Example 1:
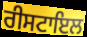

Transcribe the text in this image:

ਰੀਸਟਾਇਲ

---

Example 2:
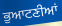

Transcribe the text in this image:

ਭੁਆਟਣੀਆਂ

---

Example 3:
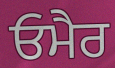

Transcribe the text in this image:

ਓਮੈਰ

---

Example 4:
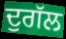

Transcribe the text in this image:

ਦੁਗੱਲ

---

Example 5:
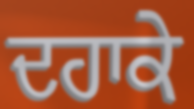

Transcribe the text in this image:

ਦਹਾਕੇ